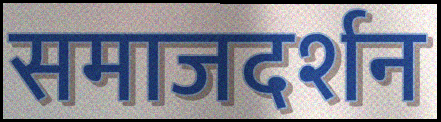
समाजदर्शन